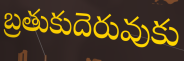
బ్రతుకుదెరువుకు